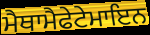
ਮੈਥਾਮੈਫੇਟੇਮਾਇਨ